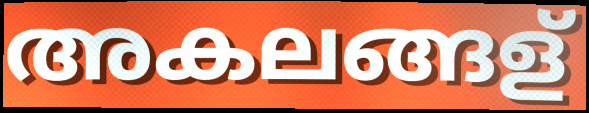
അകലങ്ങള്